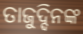
ତାଜୁଦ୍ଦିନଙ୍କ